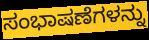
ಸಂಭಾಷಣೆಗಳನ್ನು